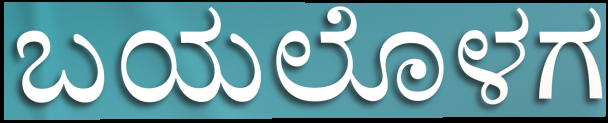
ಬಯಲೊಳಗ